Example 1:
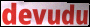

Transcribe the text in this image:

devudu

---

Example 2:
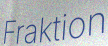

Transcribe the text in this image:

Fraktion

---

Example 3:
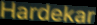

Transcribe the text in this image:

Hardekar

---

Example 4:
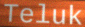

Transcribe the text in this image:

Teluk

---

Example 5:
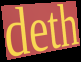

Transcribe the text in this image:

deth